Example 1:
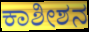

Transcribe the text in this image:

ಕಾಶೀಶನ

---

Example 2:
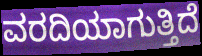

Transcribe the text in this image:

ವರದಿಯಾಗುತ್ತಿದೆ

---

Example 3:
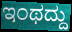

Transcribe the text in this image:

ಇಂಥದ್ದು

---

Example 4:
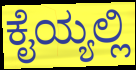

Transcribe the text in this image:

ಕೈಯ್ಯಲ್ಲಿ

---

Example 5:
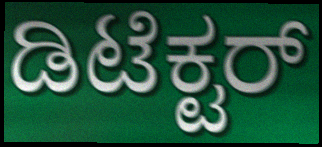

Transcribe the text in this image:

ಡಿಟೆಕ್ಟರ್